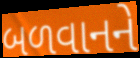
બળવાનને